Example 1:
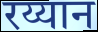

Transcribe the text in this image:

रय्यान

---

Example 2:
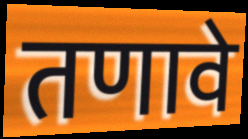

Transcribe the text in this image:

तणावे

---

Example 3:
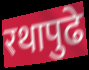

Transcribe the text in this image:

रथापुढे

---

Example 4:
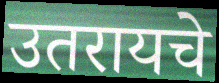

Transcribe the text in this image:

उतरायचे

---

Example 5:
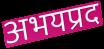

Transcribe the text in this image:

अभयप्रद